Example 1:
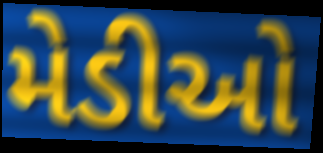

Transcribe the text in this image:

મેડીઓ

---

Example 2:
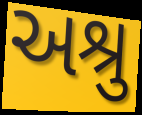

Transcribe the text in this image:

અશ્રુ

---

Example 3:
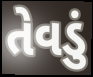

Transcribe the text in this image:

તેવડું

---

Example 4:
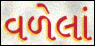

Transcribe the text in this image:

વળેલાં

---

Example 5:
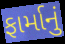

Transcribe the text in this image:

ફાર્માનું